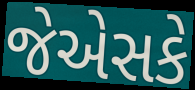
જેએસકે